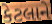
કેટલાને